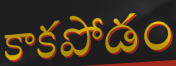
కాకపోడం